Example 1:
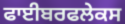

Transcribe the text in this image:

ਫਾਈਬਰਫਲੇਕਸ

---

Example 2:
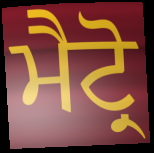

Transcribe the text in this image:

ਮੈਟ੍ਰੋ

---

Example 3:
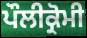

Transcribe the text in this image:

ਪੌਲੀਕ੍ਰੋਮੀ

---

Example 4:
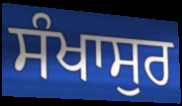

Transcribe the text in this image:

ਸੰਖਾਸੁਰ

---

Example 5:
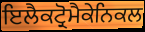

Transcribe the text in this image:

ਇਲੈਕਟ੍ਰੋਮੈਕੇਨਿਕਲ